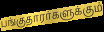
பங்குதாரர்களுக்கும்